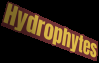
Hydrophytes